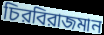
চিরবিরাজমান